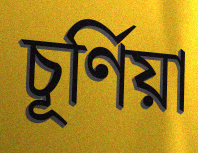
চূর্ণিয়া